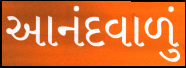
આનંદવાળું